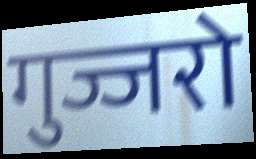
गुज्जरो